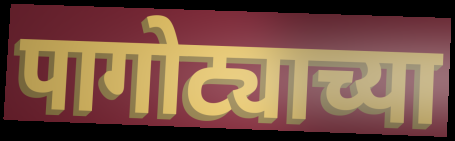
पागोट्याच्या